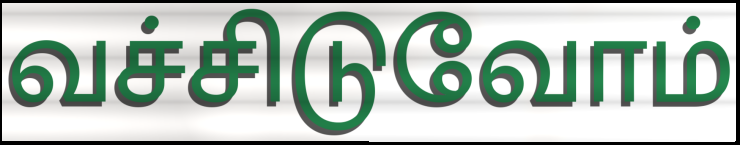
வச்சிடுவோம்